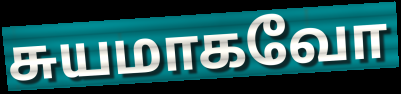
சுயமாகவோ